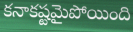
కనాకష్టమైపోయింది